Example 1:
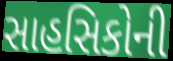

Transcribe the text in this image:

સાહસિકોની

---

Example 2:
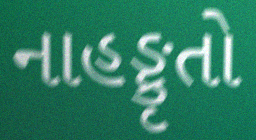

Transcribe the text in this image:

નાહઙ્કૃતો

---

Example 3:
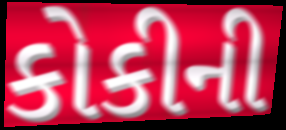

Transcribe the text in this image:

કોકીની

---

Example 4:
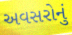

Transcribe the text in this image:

અવસરોનું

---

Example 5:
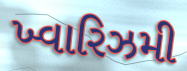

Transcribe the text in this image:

ખ્વારિઝમી